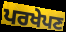
ਪਰਖੇਪਣ